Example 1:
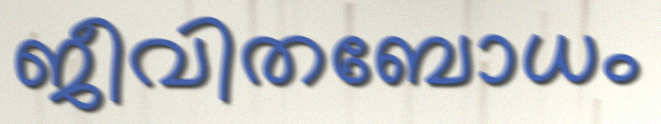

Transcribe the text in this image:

ജീവിതബോധം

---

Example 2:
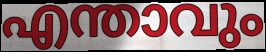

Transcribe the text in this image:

എന്താവും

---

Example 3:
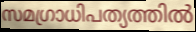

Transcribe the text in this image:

സമഗ്രാധിപത്യത്തിൽ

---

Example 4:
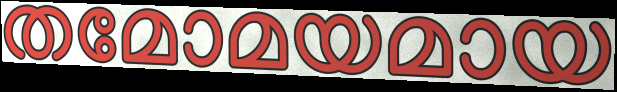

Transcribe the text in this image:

തമോമയമായ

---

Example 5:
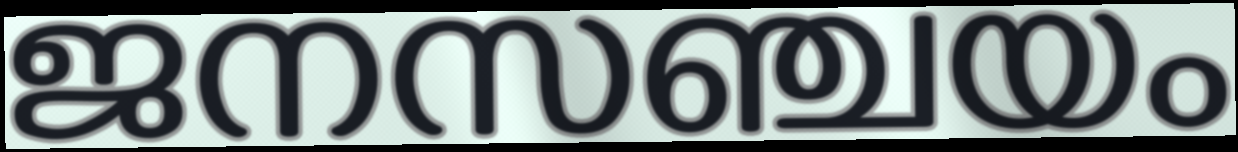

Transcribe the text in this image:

ജനസഞ്ചയം